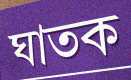
ঘাতক